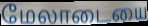
மேலாடையை